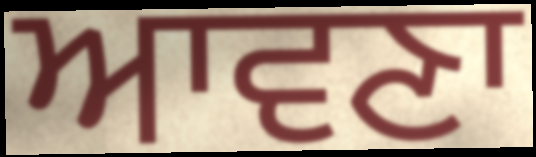
ਆਵਣਾ